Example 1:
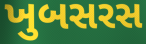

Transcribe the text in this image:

ખુબસરસ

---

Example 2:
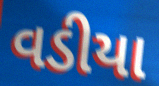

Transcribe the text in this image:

વડીયા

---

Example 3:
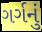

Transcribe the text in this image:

ગર્ગનું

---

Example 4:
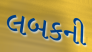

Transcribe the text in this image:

લબકની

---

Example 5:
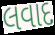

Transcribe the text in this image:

લવાદ